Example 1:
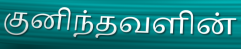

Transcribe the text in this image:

குனிந்தவளின்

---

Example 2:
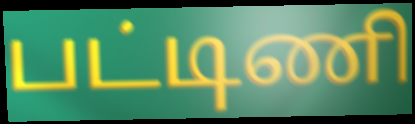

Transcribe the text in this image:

பட்டிணி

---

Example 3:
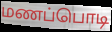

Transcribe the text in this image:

மணப்பொடி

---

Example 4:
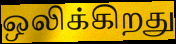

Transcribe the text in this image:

ஒலிக்கிறது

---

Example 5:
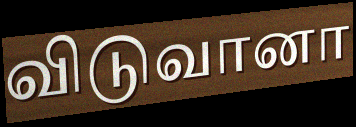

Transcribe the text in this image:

விடுவானா